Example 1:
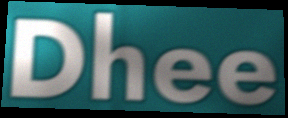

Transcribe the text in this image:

Dhee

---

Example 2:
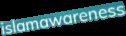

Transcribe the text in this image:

islamawareness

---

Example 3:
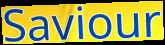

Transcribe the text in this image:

Saviour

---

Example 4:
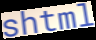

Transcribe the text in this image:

shtml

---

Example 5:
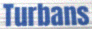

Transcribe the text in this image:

Turbans